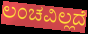
ಲಂಚವಿಲ್ಲದೆ